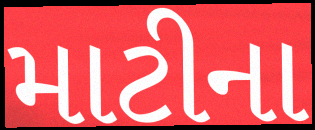
માટીના